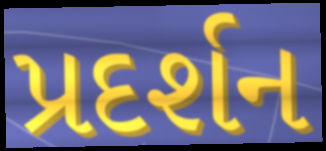
પ્રદર્શન